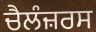
ਚੈਲੰਜ਼ਰਸ